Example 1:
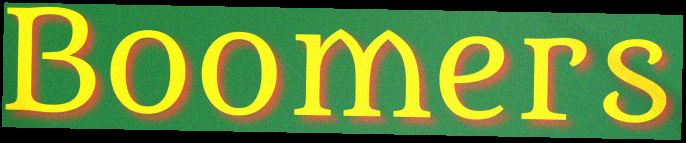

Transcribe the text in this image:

Boomers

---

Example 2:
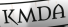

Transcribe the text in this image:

KMDA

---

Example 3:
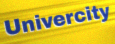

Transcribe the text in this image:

Univercity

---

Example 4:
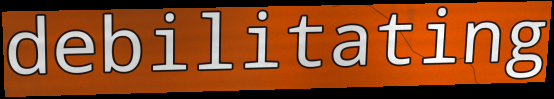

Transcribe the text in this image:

debilitating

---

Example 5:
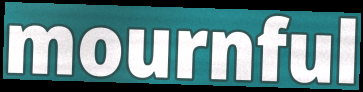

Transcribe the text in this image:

mournful